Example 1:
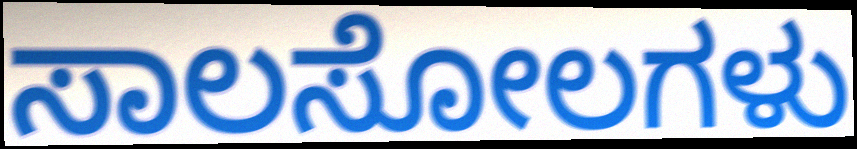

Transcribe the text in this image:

ಸಾಲಸೋಲಗಳು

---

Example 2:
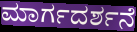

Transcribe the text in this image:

ಮಾರ್ಗದರ್ಶನೆ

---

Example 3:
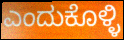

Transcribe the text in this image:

ಎಂದುಕೊಳ್ಳಿ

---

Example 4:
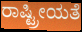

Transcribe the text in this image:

ರಾಷ್ಟ್ರೀಯತೆ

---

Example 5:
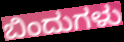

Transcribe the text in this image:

ಬಿಂದುಗಳು